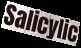
Salicylic